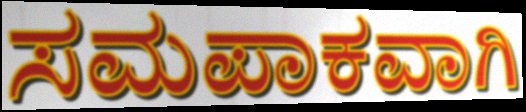
ಸಮಪಾಕವಾಗಿ